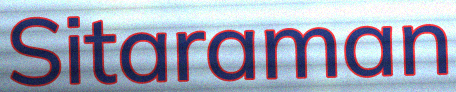
Sitaraman